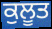
ਕੁਲੂਤ